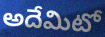
అదేమిటో